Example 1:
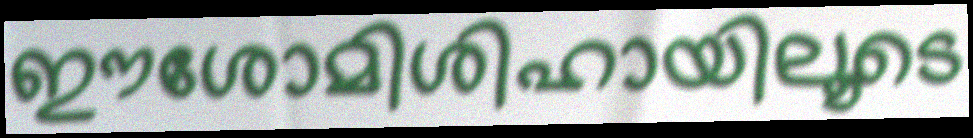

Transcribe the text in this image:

ഈശോമിശിഹായിലൂടെ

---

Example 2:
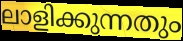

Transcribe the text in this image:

ലാളിക്കുന്നതും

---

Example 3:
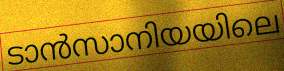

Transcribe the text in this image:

ടാൻസാനിയയിലെ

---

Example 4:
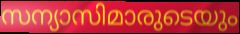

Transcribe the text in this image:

സന്യാസിമാരുടെയും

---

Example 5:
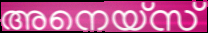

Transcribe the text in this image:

അനെയ്സ്